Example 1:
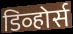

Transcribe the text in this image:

डिव्होर्स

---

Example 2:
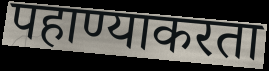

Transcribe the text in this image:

पहाण्याकरता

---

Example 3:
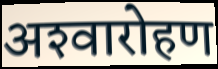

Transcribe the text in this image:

अश्वारोहण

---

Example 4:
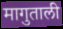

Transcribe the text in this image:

मागुताली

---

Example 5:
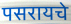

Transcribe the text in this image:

पसरायचे